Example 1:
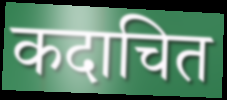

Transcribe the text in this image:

कदाचित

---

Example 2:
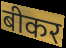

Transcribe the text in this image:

बीकर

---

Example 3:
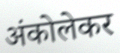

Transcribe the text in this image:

अंकोलेकर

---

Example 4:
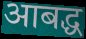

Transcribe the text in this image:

आबद्ध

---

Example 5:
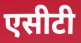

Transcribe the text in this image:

एसीटी